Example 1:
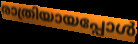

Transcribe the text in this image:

രാത്രിയായപ്പോൾ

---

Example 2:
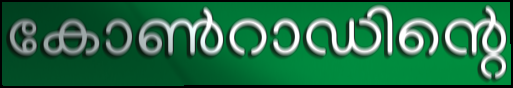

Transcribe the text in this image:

കോൺറാഡിന്റെ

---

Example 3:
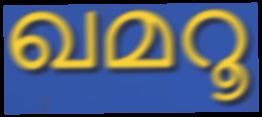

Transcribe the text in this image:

ഖമറൂ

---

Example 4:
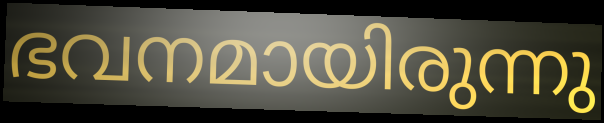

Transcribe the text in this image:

ഭവനമായിരുന്നു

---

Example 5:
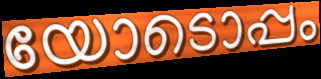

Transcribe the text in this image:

യോടൊപ്പം